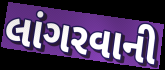
લાંગરવાની